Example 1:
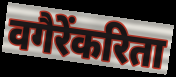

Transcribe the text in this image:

वगैरेंकरिता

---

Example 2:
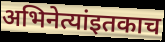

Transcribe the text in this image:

अभिनेत्यांइतकाच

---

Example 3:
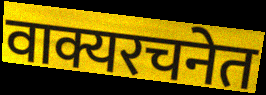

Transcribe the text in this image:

वाक्यरचनेत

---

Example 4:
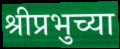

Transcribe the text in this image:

श्रीप्रभुच्या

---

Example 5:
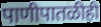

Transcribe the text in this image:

पाणीपातळीही